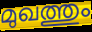
മുഖത്തും